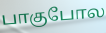
பாகுபோல